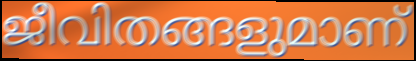
ജീവിതങ്ങളുമാണ്